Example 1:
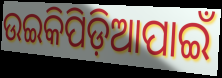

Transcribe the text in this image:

ଉଇକିପିଡ଼ିଆପାଇଁ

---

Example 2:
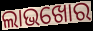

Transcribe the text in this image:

ଲାଭଖୋର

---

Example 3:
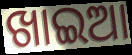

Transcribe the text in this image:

ଖାଇଆ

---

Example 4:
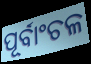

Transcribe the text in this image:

ପୂର୍ବାଂଚଳ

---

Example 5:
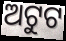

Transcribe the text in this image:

ଅଟୁଟ